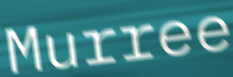
Murree